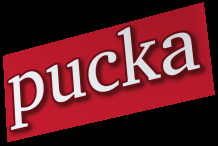
pucka